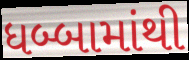
ધબ્બામાંથી